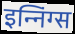
इन्निंग्स